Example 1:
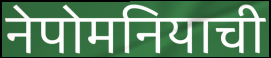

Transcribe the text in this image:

नेपोमनियाची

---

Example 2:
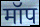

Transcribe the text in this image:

मॉप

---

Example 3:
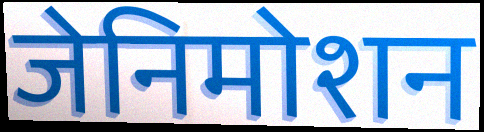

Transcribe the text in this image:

जेनिमोशन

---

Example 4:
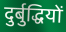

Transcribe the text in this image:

दुर्बुद्धियों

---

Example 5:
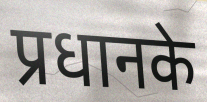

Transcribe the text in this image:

प्रधानके